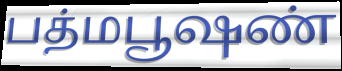
பத்மபூஷண்